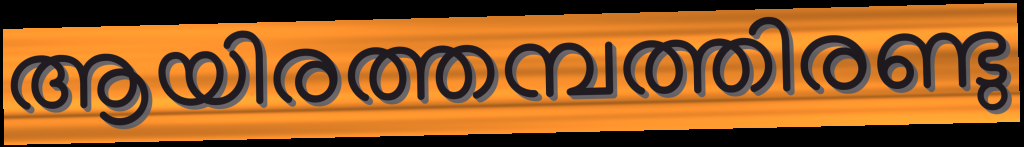
ആയിരത്തമ്പത്തിരണ്ടു